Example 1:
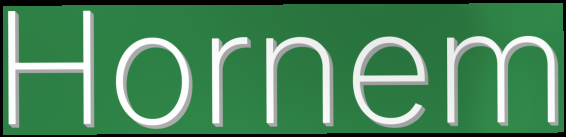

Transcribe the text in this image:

Hornem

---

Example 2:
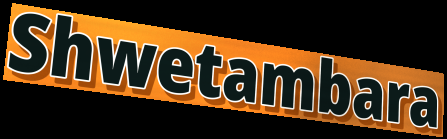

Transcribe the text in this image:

Shwetambara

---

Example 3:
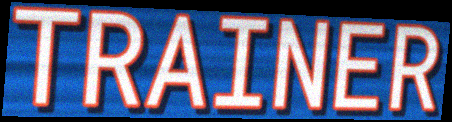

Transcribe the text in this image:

TRAINER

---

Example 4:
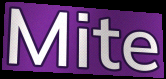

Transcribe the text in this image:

Mite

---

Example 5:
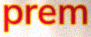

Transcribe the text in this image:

prem